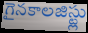
గైనకాలజిస్ట్లు